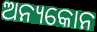
ଅନ୍ୟକୋନ